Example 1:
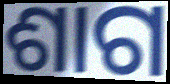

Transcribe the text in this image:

ଶାଗ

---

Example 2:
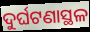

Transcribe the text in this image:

ଦୁର୍ଘଟଣାସ୍ଥଳ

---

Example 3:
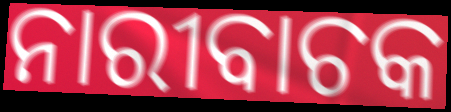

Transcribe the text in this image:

ନାରୀବାଚକ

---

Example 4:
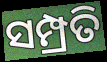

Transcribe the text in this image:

ସମ୍ପ୍ରତି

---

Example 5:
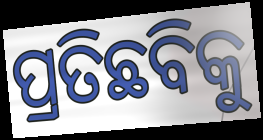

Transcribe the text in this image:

ପ୍ରତିଛବିକୁ